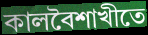
কালবৈশাখীতে